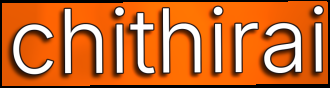
chithirai